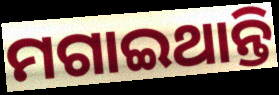
ମଗାଇଥାନ୍ତି